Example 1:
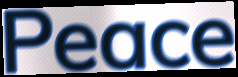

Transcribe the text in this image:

Peace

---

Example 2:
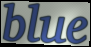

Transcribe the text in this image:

blue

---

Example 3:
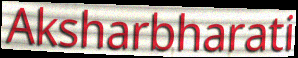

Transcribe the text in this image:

Aksharbharati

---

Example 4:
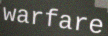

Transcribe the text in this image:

warfare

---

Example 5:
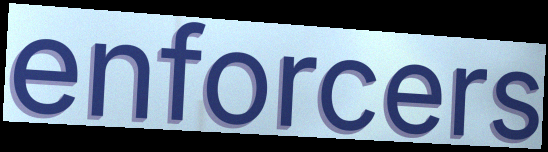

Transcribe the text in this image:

enforcers